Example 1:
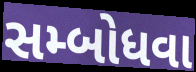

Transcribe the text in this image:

સમ્બોધવા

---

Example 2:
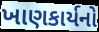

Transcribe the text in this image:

ખાણકાર્યનો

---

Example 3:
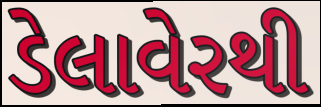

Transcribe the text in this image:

ડેલાવેરથી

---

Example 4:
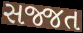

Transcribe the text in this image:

સજ્જત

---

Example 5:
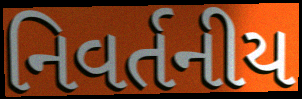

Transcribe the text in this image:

નિવર્તનીય